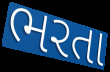
ભરતા